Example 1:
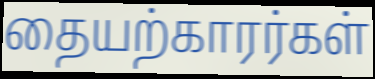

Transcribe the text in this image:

தையற்காரர்கள்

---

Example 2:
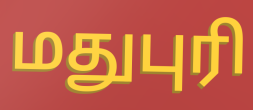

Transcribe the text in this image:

மதுபுரி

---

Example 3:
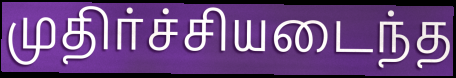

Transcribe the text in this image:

முதிர்ச்சியடைந்த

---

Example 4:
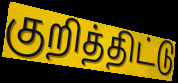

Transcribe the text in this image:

குறித்திட்டு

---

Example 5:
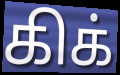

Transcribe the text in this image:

கிக்